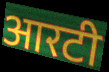
आरटी